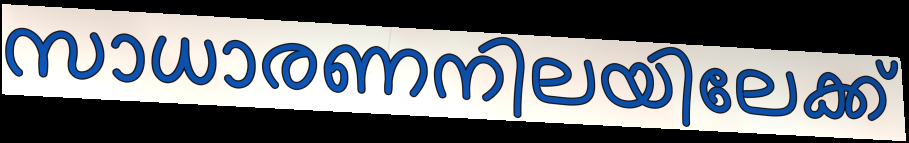
സാധാരണനിലയിലേക്ക്